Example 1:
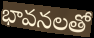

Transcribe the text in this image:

భావనలతో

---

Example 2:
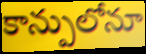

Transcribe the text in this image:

కాన్పులోనూ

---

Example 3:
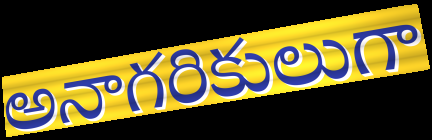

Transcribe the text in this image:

అనాగరికులుగా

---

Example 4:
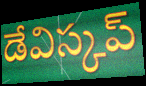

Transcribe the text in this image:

డేవిస్కప్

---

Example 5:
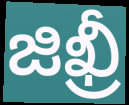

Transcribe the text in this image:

జిఖ్రీ